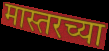
मास्तरच्या